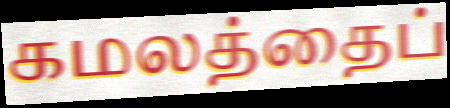
கமலத்தைப்